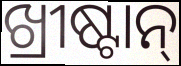
ଖ୍ରୀଷ୍ଟାନ୍